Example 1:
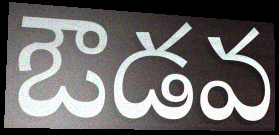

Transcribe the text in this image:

ఔడవ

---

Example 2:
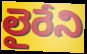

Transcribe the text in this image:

లైరేని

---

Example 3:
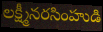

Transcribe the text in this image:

లక్ష్మీనరసింహుడి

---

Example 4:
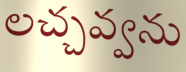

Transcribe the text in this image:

లచ్చవ్వను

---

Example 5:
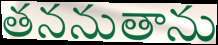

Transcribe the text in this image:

తననుతాను